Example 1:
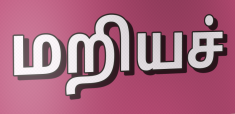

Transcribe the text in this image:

மறியச்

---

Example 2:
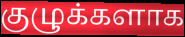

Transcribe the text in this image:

குழுக்களாக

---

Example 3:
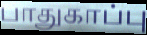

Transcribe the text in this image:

பாதுகாப்பு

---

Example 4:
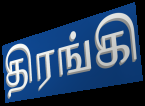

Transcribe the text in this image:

திரங்கி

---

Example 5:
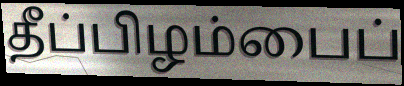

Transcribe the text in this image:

தீப்பிழம்பைப்